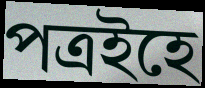
পত্ৰইহে